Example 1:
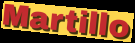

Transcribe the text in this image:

Martillo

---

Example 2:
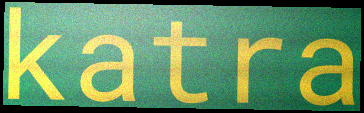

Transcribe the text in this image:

katra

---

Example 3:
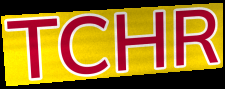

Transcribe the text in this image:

TCHR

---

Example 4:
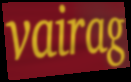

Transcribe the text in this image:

vairag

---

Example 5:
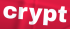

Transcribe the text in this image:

crypt